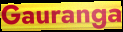
Gauranga